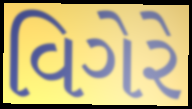
વિગેરે